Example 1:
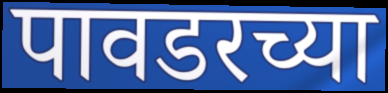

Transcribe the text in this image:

पावडरच्या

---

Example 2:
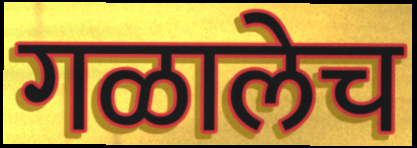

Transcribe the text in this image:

गळालेच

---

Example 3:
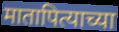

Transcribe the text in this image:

मातापित्याच्या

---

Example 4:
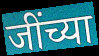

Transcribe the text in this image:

जींच्या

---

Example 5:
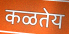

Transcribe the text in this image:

कळतेय